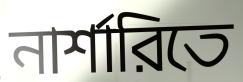
নার্শারিতে